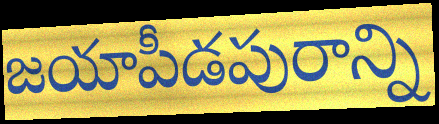
జయాపీడపురాన్ని